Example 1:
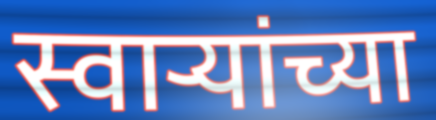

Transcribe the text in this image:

स्वाऱ्यांच्या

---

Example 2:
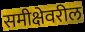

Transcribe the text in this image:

समीक्षेवरील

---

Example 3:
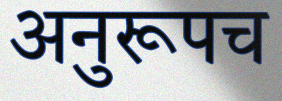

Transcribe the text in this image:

अनुरूपच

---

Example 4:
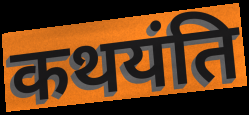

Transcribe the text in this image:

कथयंति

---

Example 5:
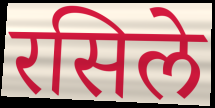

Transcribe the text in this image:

रसिले